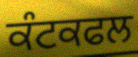
ਕੰਟਕਫਲ